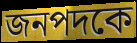
জনপদকে